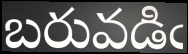
బరువడిఁ